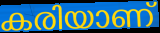
കരിയാണ്